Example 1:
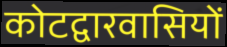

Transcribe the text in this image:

कोटद्वारवासियों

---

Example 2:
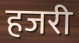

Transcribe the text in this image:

हजरी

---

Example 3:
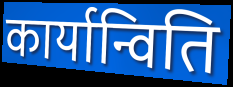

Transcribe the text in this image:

कार्यान्विति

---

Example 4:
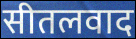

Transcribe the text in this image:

सीतलवाद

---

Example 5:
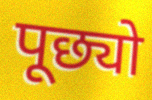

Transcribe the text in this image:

पूछ्यो